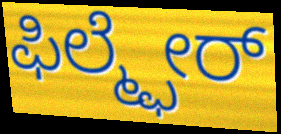
ಫಿಲ್ಮ್ಫೇರ್